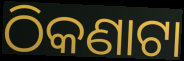
ଠିକଣାଟା